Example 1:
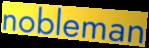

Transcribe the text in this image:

nobleman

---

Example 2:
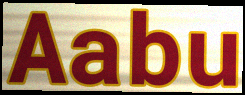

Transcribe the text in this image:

Aabu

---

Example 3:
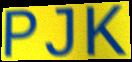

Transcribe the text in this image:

PJK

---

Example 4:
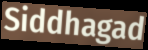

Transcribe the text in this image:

Siddhagad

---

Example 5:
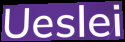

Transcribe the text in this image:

Ueslei